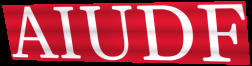
AIUDF